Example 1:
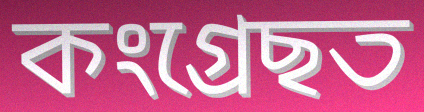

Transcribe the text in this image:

কংগ্ৰেছত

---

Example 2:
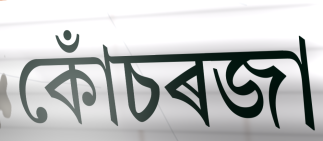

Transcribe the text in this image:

কোঁচৰজা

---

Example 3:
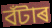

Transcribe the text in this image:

বঁটাৰ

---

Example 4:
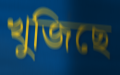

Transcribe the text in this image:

খুজিছে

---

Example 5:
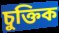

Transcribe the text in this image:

চুক্তিক